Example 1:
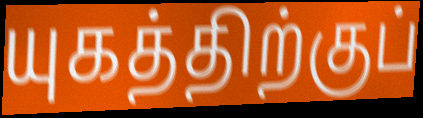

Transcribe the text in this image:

யுகத்திற்குப்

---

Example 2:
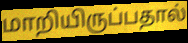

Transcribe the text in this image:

மாறியிருப்பதால்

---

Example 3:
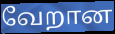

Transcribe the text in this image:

வேறான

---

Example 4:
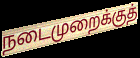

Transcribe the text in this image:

நடைமுறைக்குத்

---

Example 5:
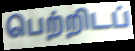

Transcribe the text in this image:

பெற்றிடப்